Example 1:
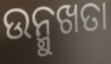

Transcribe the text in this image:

ଉନ୍ମୁଖତା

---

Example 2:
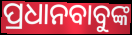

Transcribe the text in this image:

ପ୍ରଧାନବାବୁଙ୍କ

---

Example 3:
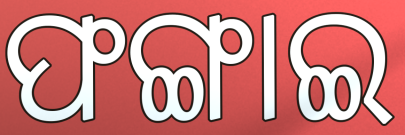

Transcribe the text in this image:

ଫଙ୍ଗାଇ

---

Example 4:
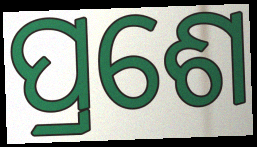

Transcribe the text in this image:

ପ୍ରଶେ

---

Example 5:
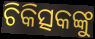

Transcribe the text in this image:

ଚିକିତ୍ସକଙ୍କୁ